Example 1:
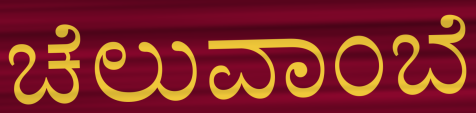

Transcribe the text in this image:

ಚೆಲುವಾಂಬೆ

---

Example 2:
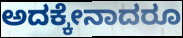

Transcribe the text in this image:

ಅದಕ್ಕೇನಾದರೂ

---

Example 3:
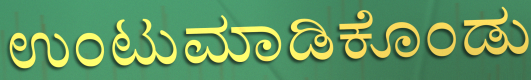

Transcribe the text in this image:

ಉಂಟುಮಾಡಿಕೊಂಡು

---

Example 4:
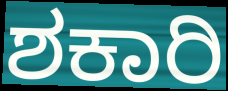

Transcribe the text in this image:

ಶಕಾರಿ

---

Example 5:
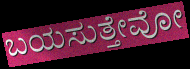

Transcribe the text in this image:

ಬಯಸುತ್ತೇವೋ